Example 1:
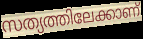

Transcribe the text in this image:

സത്യത്തിലേക്കാണ്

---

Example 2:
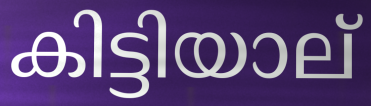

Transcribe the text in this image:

കിട്ടിയാല്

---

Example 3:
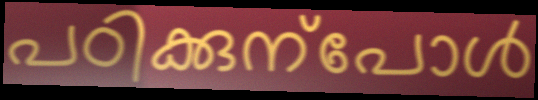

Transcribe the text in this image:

പഠിക്കുന്പോൾ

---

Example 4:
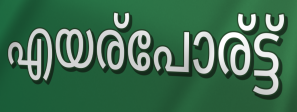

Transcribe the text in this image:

എയര്പോര്ട്ട്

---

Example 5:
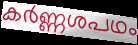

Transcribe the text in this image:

കർണ്ണശപഥം